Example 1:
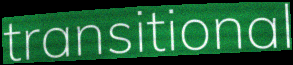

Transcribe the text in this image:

transitional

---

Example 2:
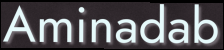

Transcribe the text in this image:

Aminadab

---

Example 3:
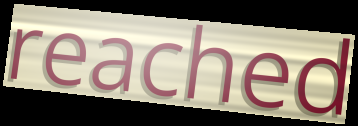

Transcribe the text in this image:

reached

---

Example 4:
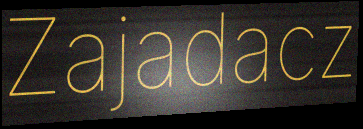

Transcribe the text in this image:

Zajadacz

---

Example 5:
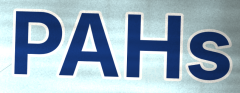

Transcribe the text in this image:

PAHs